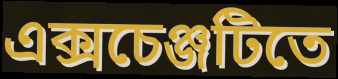
এক্সচেঞ্জটিতে